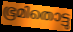
ഭൂമിതൊട്ടു